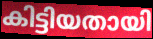
കിട്ടിയതായി